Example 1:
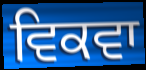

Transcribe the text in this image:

ਵਿਕਵਾ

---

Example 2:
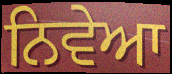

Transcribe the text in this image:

ਨਿਵੇਆ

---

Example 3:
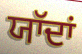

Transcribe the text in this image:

ਯਾੱਦਾਂ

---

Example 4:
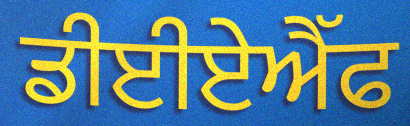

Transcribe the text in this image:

ਡੀਈਏਐੱਫ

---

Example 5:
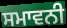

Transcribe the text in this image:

ਸਮਾਵਨੀ